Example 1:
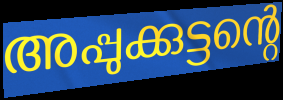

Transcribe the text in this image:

അപ്പുക്കുട്ടന്റെ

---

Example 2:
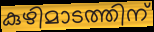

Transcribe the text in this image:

കുഴിമാടത്തിന്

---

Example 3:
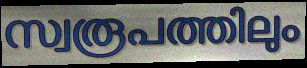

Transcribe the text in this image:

സ്വരൂപത്തിലും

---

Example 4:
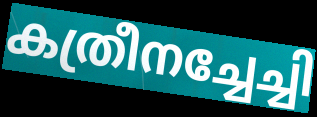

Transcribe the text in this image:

കത്രീനച്ചേച്ചി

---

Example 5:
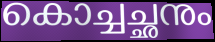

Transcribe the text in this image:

കൊച്ചച്ഛനും